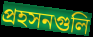
প্রহসনগুলি